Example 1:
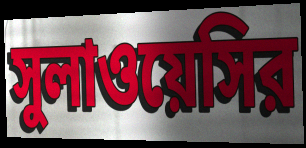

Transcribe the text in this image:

সুলাওয়েসির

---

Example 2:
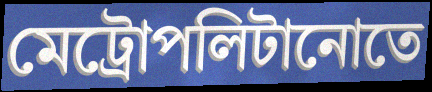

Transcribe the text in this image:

মেট্রোপলিটানোতে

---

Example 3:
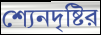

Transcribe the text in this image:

শ্যেনদৃষ্টির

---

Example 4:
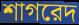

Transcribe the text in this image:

শাগরেদ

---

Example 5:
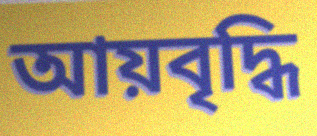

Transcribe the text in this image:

আয়বৃদ্ধি